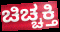
ಚಿಚ್ಚಕ್ತಿ